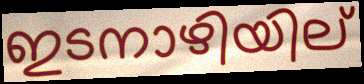
ഇടനാഴിയില്